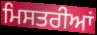
ਮਿਸਤਰੀਆਂ